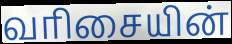
வரிசையின்